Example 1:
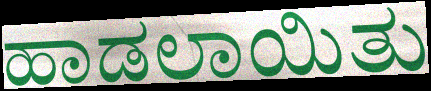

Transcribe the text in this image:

ಹಾಡಲಾಯಿತು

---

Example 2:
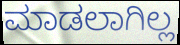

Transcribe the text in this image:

ಮಾಡಲಾಗಿಲ್ಲ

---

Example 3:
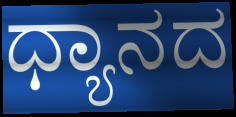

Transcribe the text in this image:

ಧ್ಯಾನದ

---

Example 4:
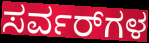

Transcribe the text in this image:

ಸರ್ವರ್‌ಗಳ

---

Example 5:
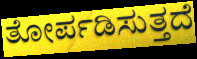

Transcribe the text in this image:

ತೋರ್ಪಡಿಸುತ್ತದೆ